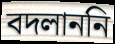
বদলাননি